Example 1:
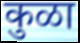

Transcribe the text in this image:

कुळा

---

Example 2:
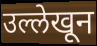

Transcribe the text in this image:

उल्लेखून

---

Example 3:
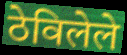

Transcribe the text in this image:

ठेविलेले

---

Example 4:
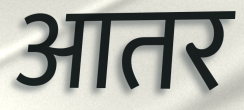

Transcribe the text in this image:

आतर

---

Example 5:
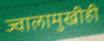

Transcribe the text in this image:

ज्वालामुखीही